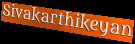
Sivakarthikeyan